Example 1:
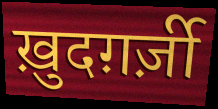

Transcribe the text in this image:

ख़ुदग़र्ज़ी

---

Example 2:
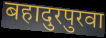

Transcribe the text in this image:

बहादुरपुरवा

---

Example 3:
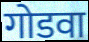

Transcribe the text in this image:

गोडवा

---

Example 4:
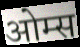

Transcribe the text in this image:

ओम्स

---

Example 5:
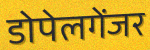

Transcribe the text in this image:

डोपेलगेंजर